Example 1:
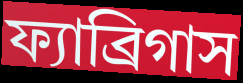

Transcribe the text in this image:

ফ্যাব্রিগাস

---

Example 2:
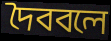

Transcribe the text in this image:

দৈববলে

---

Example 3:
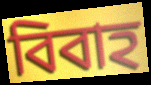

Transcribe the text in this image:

বিবাহ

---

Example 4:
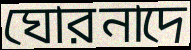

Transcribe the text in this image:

ঘোরনাদে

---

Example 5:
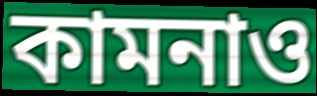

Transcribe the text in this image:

কামনাও